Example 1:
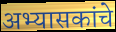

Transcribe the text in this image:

अभ्यासकांचे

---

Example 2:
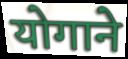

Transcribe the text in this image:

योगाने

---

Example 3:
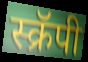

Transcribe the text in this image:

स्क्रॅपी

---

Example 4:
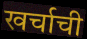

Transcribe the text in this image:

खर्चाची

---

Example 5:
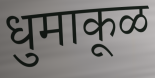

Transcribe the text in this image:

धुमाकूळ